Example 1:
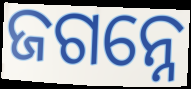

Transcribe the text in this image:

ଜଗନ୍ନେ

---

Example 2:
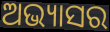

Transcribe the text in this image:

ଅଭ୍ୟାସର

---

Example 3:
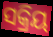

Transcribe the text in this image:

ସକ୍ରିୟ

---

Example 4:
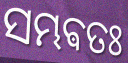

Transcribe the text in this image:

ସମ୍ଭଵତଃ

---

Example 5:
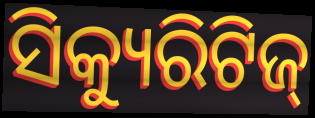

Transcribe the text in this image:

ସିକ୍ୟୁରିଟିଜ୍